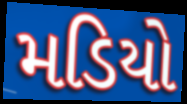
મડિયો